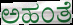
ಅಹಂತೆ